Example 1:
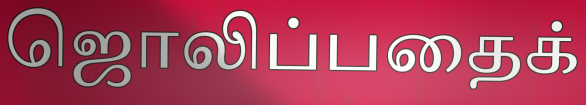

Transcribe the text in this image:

ஜொலிப்பதைக்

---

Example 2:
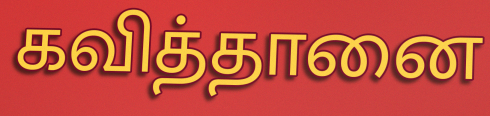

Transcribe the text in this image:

கவித்தானை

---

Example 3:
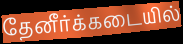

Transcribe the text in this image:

தேனீர்க்கடையில்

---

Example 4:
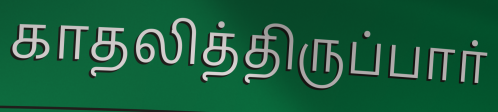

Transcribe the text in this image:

காதலித்திருப்பார்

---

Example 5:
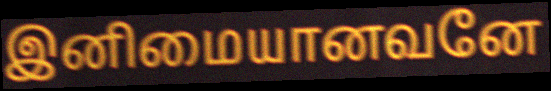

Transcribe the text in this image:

இனிமையானவனே